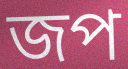
জপ